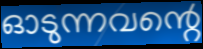
ഓടുന്നവന്റെ